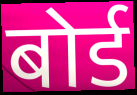
बोर्ड